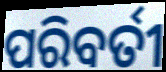
ପରିବର୍ତୀ